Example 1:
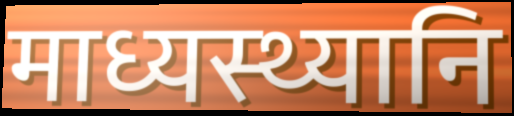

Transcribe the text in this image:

माध्यस्थ्यानि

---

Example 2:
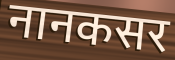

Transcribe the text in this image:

नानकसर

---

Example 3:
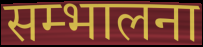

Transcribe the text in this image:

सम्भालना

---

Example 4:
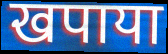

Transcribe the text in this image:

खपाया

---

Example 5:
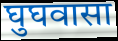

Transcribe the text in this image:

घुघवासा